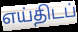
எய்திடப்